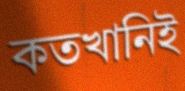
কতখানিই